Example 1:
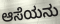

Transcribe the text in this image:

ಆಸೆಯನು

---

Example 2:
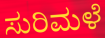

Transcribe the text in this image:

ಸುರಿಮಳೆ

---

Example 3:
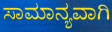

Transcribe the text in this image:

ಸಾಮಾನ್ಯವಾಗಿ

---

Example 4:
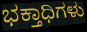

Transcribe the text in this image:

ಭಕ್ತಾಧಿಗಳು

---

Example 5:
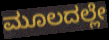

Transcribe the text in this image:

ಮೂಲದಲ್ಲೇ